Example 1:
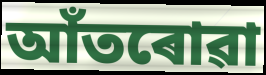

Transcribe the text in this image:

আঁতৰোৱা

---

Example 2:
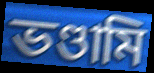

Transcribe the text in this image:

ভণ্ডামি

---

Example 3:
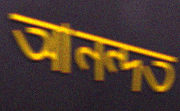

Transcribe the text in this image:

আনন্দত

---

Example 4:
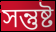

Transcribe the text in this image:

সন্তুষ্ট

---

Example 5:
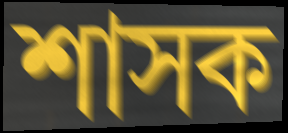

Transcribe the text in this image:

শাসক